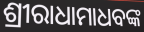
ଶ୍ରୀରାଧାମାଧବଙ୍କ